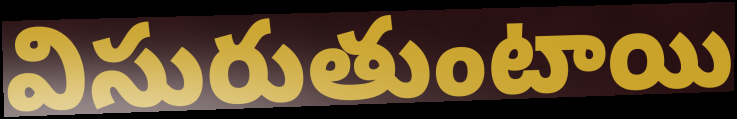
విసురుతుంటాయి